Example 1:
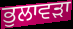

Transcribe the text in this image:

ਭੁਲਾਵੜਾ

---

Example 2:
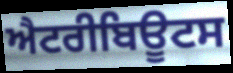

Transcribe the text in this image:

ਐਟਰੀਬਿਊਟਸ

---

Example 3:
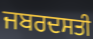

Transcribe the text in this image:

ਜਬਰਦਸਤੀ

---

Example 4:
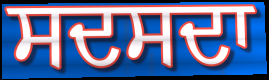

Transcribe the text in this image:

ਸਦਸਦਾ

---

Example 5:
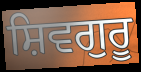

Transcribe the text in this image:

ਸ਼ਿਵਗੁਰੂ